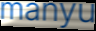
manyu